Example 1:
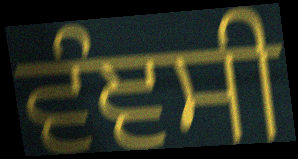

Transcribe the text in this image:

ਵੰਞਸੀ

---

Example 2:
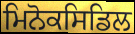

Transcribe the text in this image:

ਮਿਨੋਕਸਿਡਿਲ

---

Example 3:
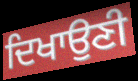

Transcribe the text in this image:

ਦਿਖਾਉਣੀ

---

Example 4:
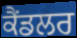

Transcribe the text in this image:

ਕੈਂਡਲਰ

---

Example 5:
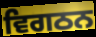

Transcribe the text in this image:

ਵਿਗਠਨ